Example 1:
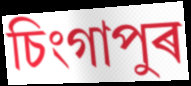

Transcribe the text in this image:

চিংগাপুৰ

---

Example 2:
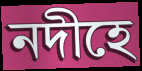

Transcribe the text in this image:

নদীহে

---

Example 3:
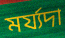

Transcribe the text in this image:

মৰ্য্যদা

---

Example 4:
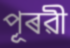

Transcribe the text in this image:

পূৰৱী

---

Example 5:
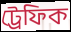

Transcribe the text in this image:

ট্ৰেফিক